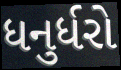
ધનુર્ધરો